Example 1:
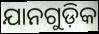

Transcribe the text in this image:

ଯାନଗୁଡ଼ିକ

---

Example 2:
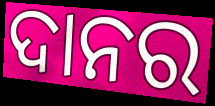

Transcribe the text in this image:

ଦାନର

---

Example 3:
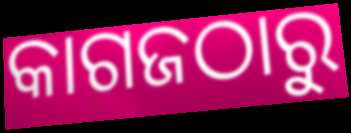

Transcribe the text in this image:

କାଗଜଠାରୁ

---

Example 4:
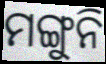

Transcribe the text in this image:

ମଙ୍ଗୁନି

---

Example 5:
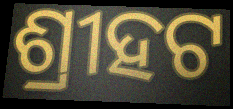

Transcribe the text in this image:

ଶ୍ରୀହଟ